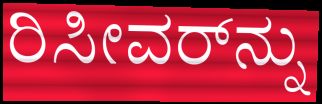
ರಿಸೀವರ್‌ನ್ನು